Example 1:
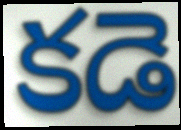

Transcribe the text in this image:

కడె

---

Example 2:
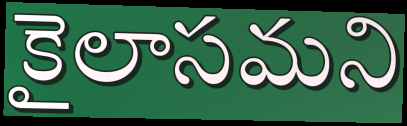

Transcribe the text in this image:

కైలాసమని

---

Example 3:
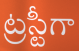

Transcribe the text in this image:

ట్రస్టీగా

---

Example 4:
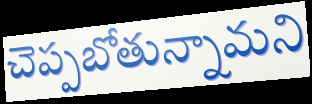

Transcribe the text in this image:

చెప్పబోతున్నామని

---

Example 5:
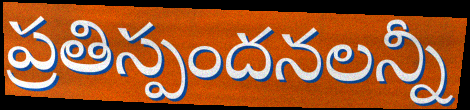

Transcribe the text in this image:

ప్రతిస్పందనలన్నీ